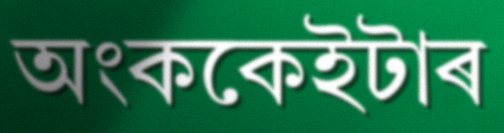
অংককেইটাৰ